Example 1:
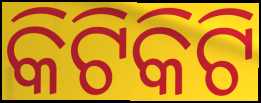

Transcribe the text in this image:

କିଟିକିଟି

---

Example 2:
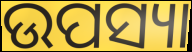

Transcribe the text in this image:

ଉପସ୍ୟା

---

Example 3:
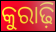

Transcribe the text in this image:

କୁରାଢ଼ି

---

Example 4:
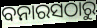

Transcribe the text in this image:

ବନାରସଠାରୁ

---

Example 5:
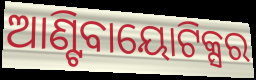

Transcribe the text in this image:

ଆଣ୍ଟିବାୟୋଟିକ୍ସର